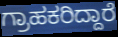
ಗ್ರಾಹಕರಿದ್ದಾರೆ